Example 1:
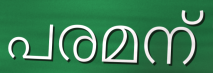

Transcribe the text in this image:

പരമന്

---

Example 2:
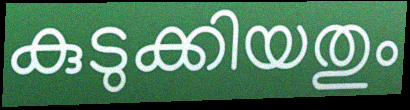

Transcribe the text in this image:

കുടുക്കിയതും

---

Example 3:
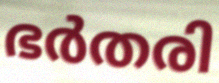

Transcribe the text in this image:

ഭർതരി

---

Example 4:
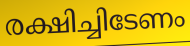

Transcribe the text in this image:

രക്ഷിച്ചിടേണം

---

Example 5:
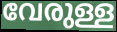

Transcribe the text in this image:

വേരുള്ള